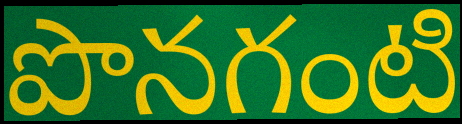
పొనగంటి